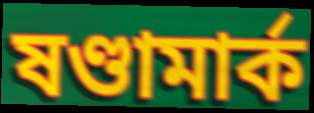
ষণ্ডামার্ক